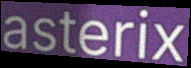
asterix